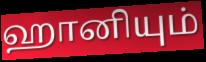
ஹானியும்